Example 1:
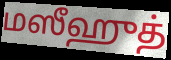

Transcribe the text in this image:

மஸீஹுத்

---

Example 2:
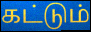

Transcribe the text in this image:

கட்டும்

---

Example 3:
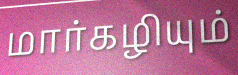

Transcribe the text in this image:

மார்கழியும்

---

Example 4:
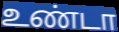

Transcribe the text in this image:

உண்டா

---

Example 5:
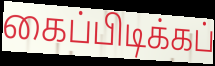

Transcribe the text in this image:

கைப்பிடிக்கப்